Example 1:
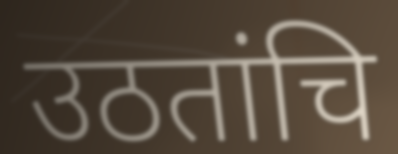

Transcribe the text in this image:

उठतांचि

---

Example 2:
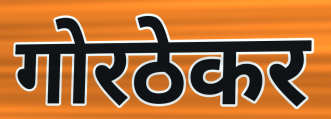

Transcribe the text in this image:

गोरठेकर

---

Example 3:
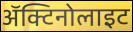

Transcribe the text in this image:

ॲक्टिनोलाइट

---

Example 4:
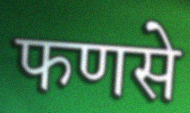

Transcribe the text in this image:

फणसे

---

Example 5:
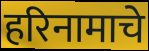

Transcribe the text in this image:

हरिनामाचे